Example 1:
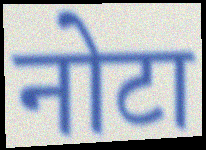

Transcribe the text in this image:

नोटा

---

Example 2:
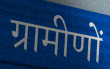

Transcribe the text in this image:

ग्रामीणों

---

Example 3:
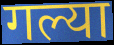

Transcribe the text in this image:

गल्या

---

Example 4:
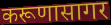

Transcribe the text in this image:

करूणासागर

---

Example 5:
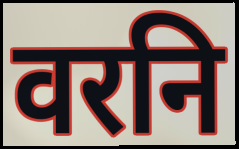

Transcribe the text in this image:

वरनि